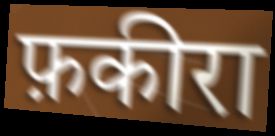
फ़कीरा